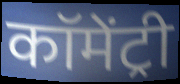
कॉमेंट्री